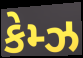
કેમ્ઝ